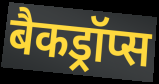
बैकड्रॉप्स